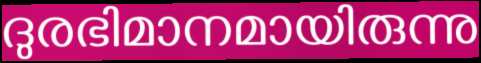
ദുരഭിമാനമായിരുന്നു